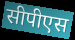
सीपीएस